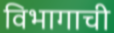
विभागाची